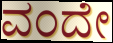
ವಂದೇ